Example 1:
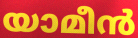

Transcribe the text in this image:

യാമീൻ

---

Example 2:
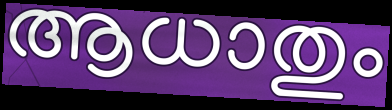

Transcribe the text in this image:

ആധാതും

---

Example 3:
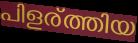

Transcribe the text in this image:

പിളര്ത്തിയ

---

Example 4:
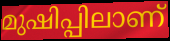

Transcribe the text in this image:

മുഷിപ്പിലാണ്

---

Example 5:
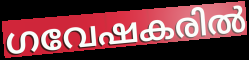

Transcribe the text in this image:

ഗവേഷകരിൽ